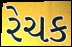
રેચક